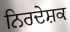
ਨਿਰਦੇਸ਼ਕ